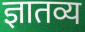
ज्ञातव्य